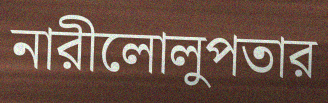
নারীলোলুপতার